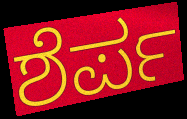
ಶೆರ್ಪ